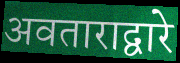
अवताराद्वारे